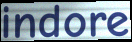
indore